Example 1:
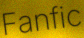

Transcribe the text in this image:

Fanfic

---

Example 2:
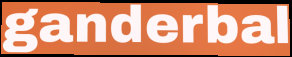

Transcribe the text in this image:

ganderbal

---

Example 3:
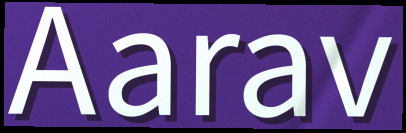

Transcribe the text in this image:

Aarav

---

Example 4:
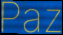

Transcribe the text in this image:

Paz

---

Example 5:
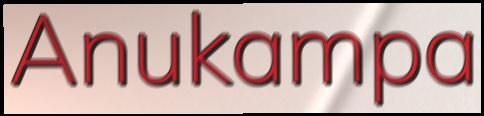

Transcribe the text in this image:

Anukampa